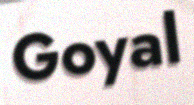
Goyal